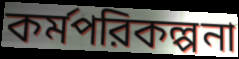
কর্মপরিকল্পনা